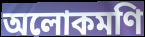
অলোকমণি